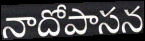
నాదోపాసన